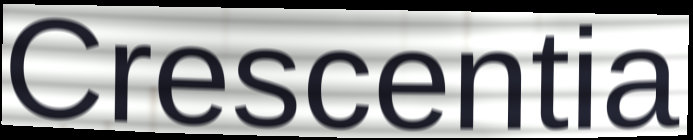
Crescentia